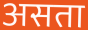
असता